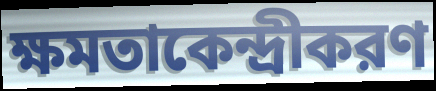
ক্ষমতাকেন্দ্রীকরণ